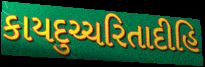
કાયદુચ્ચરિતાદીહિ